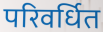
परिवर्धित